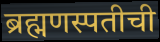
ब्रह्मणस्पतीची